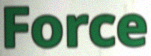
Force